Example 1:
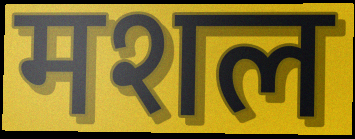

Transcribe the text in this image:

मशल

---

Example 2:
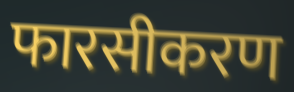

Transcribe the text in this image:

फारसीकरण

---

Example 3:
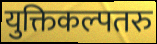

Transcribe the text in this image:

युक्तिकल्पतरु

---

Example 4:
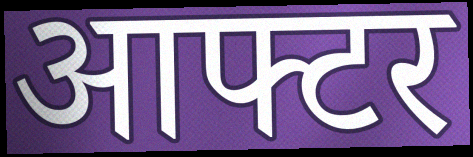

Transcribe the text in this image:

आफ्टर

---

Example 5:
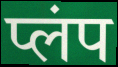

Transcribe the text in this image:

प्लंप